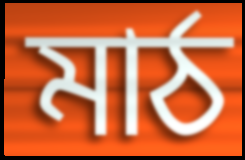
মাঠ